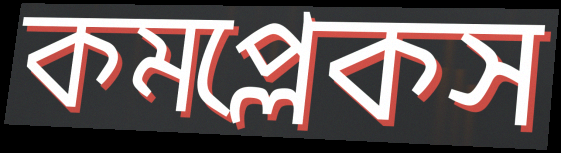
কমপ্লেকস